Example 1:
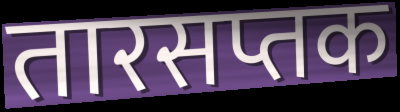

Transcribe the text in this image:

तारसप्तक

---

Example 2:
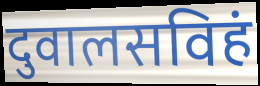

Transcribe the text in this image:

दुवालसविहं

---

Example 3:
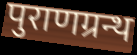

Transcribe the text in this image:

पुराणग्रन्थ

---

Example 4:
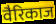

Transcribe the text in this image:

वैरिकाज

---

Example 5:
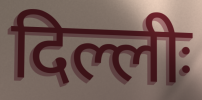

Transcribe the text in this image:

दिल्लीः